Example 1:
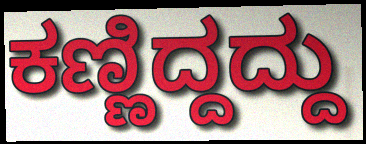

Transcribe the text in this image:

ಕಣ್ಣಿದ್ದದ್ದು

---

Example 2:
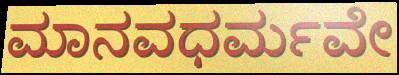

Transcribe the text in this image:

ಮಾನವಧರ್ಮವೇ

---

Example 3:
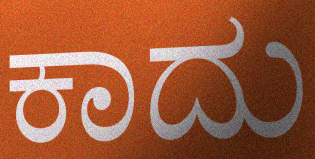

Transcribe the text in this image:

ಕಾದು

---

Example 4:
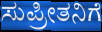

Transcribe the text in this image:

ಸುಪ್ರೀತನಿಗೆ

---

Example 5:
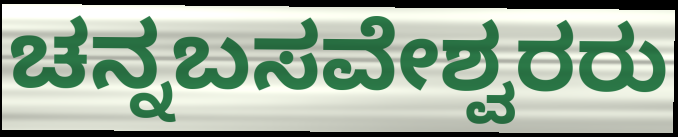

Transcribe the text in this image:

ಚನ್ನಬಸವೇಶ್ವರರು